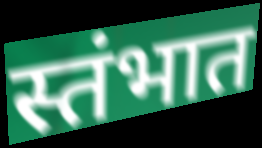
स्तंभात